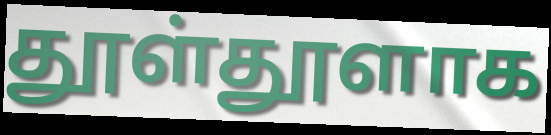
தூள்தூளாக